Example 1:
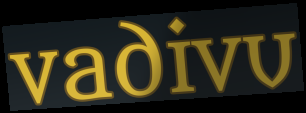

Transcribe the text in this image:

vadivu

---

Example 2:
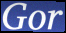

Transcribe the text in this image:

Gor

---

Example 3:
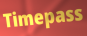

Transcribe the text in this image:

Timepass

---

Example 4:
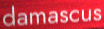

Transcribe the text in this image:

damascus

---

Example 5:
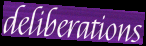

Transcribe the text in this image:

deliberations